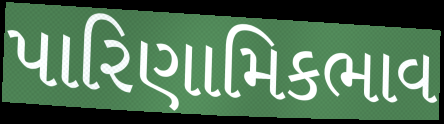
પારિણામિકભાવ